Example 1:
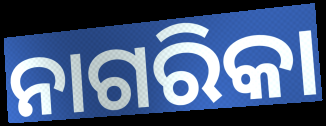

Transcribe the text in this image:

ନାଗରିକା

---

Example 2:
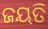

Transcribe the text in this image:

ଜୟତି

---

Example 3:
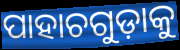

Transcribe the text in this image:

ପାହାଚଗୁଡ଼ାକୁ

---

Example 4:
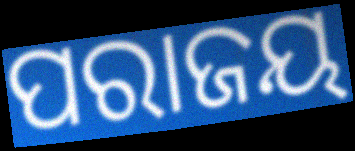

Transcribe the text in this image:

ପରାଜୟ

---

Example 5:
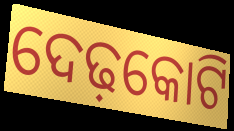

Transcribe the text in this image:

ଦେଢ଼କୋଟି